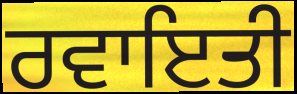
ਰਵਾਇਤੀ